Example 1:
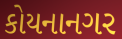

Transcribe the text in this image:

કોયનાનગર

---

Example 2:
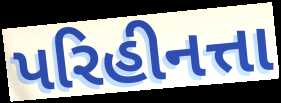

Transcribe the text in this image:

પરિહીનત્તા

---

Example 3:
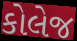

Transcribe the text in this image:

કોલેજ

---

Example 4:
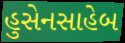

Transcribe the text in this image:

હુસેનસાહેબ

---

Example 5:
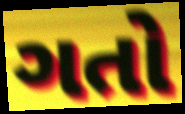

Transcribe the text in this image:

ગતો